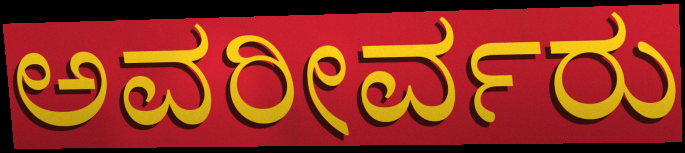
ಅವರೀರ್ವರು